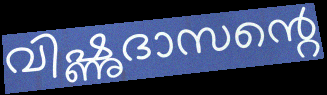
വിഷ്ണുദാസന്റെ